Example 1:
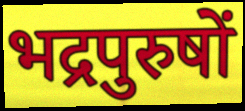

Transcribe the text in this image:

भद्रपुरुषों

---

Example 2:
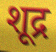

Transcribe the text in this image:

शूद्र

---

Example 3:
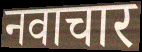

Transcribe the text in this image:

नवाचार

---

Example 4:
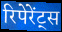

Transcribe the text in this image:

रिपेरेंट्स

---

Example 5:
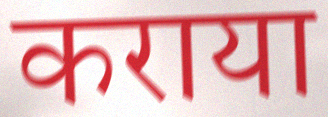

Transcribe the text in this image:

कराया